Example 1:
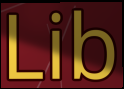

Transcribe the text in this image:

Lib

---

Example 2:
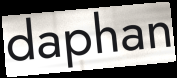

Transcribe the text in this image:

daphan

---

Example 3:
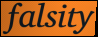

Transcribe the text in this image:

falsity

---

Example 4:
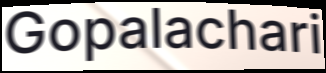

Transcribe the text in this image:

Gopalachari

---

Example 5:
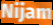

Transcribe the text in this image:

Nijam